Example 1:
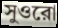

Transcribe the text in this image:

সুওরো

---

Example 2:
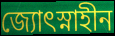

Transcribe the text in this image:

জ্যোৎস্নাহীন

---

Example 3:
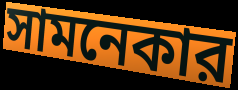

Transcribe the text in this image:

সামনেকার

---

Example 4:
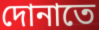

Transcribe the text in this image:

দোনাতে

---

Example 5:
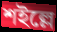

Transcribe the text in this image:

শইল্লে